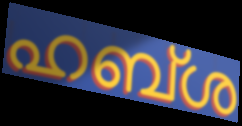
ഹബ്ശ